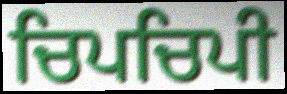
ਚਿਪਚਿਪੀ